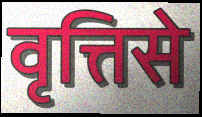
वृत्तिसे